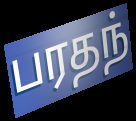
பரதந்